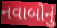
નવાબોનું